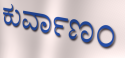
ಕುರ್ವಾಣಂ